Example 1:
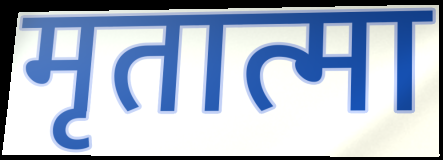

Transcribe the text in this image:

मृतात्मा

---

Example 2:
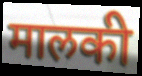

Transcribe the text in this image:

मालकी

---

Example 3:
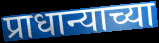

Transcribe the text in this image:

प्राधान्याच्या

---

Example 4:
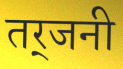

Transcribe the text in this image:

तर्जनी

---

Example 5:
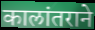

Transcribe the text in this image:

कालांतराने